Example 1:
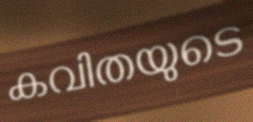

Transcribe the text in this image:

കവിതയുടെ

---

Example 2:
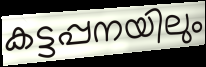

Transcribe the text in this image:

കട്ടപ്പനയിലും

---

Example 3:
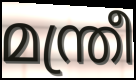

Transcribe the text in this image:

മന്ത്രീ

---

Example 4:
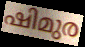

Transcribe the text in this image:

ഷിമുര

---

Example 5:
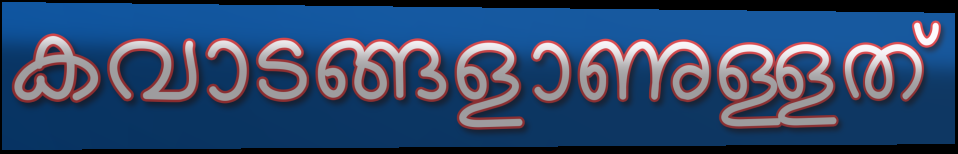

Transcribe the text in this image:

കവാടങ്ങളാണുള്ളത്